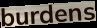
burdens